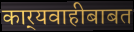
कार्यवाहीबाबत